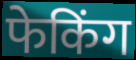
फेकिंग